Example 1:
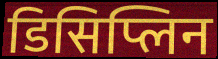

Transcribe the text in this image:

डिसिप्लिन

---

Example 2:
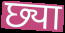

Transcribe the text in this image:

छ्या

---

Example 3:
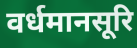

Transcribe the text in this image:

वर्धमानसूरि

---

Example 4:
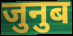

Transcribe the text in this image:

जुनुब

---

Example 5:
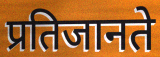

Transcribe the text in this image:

प्रतिजानते